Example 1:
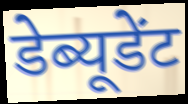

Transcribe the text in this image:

डेब्यूडेंट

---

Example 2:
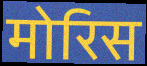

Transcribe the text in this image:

मोरिस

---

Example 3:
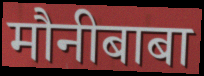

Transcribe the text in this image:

मौनीबाबा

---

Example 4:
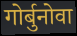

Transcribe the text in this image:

गोर्बुनोवा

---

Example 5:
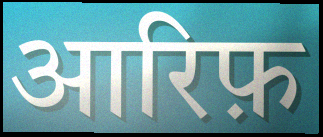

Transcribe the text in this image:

आरिफ़